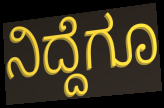
ನಿದ್ದೆಗೂ